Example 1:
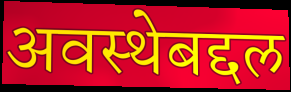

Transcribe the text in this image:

अवस्थेबद्दल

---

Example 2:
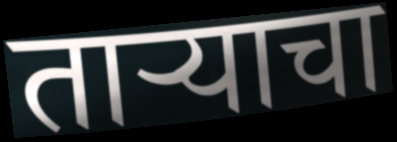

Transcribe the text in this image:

ताऱ्याचा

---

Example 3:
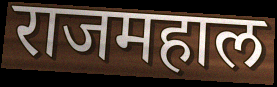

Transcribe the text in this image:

राजमहाल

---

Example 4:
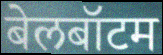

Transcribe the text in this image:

बेलबॉटम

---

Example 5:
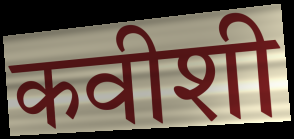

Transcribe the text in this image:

कवीशी